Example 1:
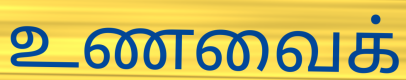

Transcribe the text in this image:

உணவைக்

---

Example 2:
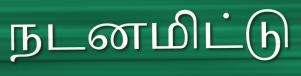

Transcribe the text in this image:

நடனமிட்டு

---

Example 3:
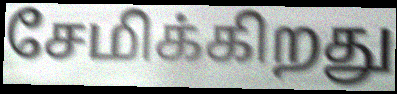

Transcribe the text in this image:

சேமிக்கிறது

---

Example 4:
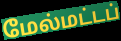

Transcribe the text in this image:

மேல்மட்டப்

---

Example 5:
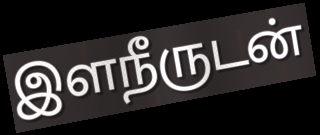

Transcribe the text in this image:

இளநீருடன்